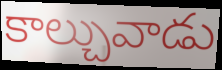
కాల్చువాడు